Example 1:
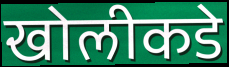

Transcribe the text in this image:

खोलीकडे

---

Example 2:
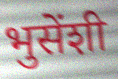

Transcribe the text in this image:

भुसेंशी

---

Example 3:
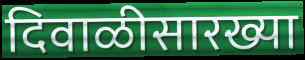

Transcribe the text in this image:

दिवाळीसारख्या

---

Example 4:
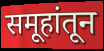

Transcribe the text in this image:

समूहांतून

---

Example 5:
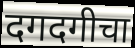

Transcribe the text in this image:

दगदगीचा